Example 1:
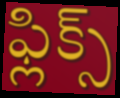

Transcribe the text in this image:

ఫ్లిక్స్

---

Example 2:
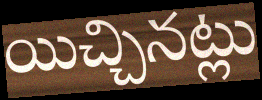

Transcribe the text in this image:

యిచ్చినట్లు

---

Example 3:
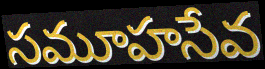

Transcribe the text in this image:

సమూహసేవ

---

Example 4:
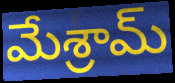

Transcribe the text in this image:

మేశ్రామ్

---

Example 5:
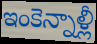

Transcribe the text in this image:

ఇంకెన్నాళ్లీ